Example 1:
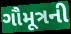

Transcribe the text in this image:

ગૌમૂત્રની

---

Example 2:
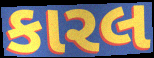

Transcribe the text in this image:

કારલ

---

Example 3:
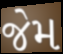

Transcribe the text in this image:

જેમ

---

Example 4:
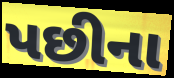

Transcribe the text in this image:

પછીના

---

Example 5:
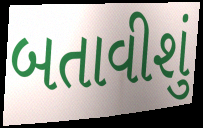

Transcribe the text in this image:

બતાવીશું